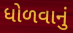
ધોળવાનું